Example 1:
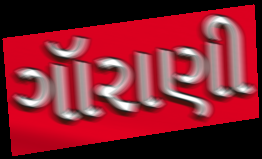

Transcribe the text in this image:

ગૉરાણી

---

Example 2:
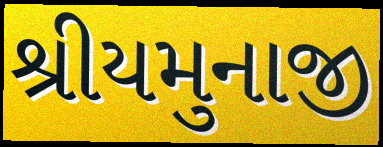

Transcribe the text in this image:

શ્રીયમુનાજી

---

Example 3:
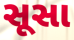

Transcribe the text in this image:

સૂસા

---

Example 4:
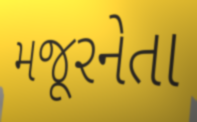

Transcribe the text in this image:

મજૂરનેતા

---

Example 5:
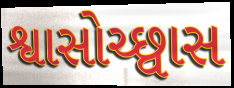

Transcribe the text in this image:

શ્વાસોચ્છ્વાસ